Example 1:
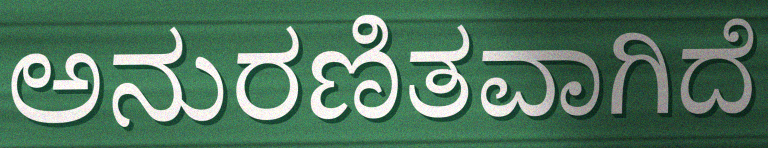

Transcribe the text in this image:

ಅನುರಣಿತವಾಗಿದೆ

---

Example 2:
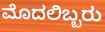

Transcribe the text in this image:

ಮೊದಲಿಬ್ಬರು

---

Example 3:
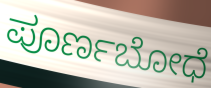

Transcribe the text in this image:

ಪೂರ್ಣಬೋಧೆ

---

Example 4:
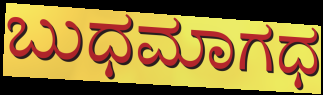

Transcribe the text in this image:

ಬುಧಮಾಗಧ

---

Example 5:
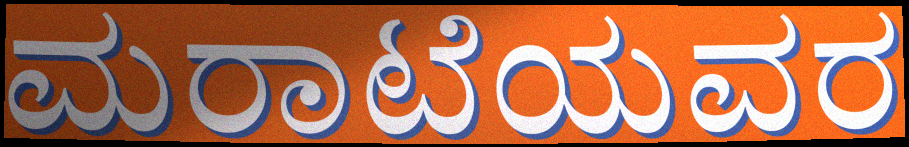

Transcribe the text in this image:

ಮರಾಟೆಯವರ